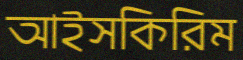
আইসকিরিম